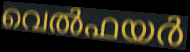
വെൽഫയർ